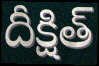
దీక్షిత్